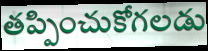
తప్పించుకోగలడు